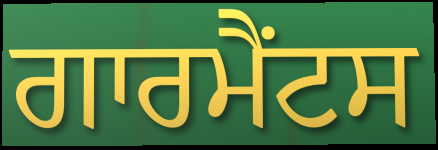
ਗਾਰਮੈਂਟਸ